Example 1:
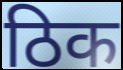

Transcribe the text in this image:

ठिक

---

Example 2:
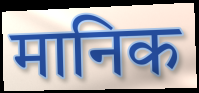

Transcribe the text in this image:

मानिक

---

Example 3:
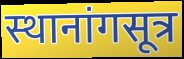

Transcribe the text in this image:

स्थानांगसूत्र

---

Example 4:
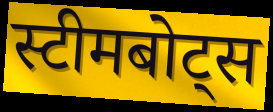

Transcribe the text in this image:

स्टीमबोट्स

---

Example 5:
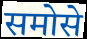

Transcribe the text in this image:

समोसे